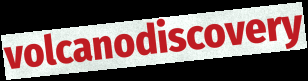
volcanodiscovery